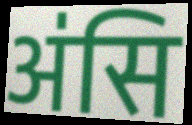
अ॑सि